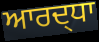
ਆਰਦ੍ਧਾ